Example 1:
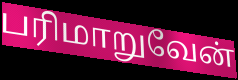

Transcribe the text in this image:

பரிமாறுவேன்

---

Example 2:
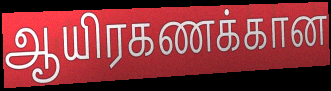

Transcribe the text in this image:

ஆயிரகணக்கான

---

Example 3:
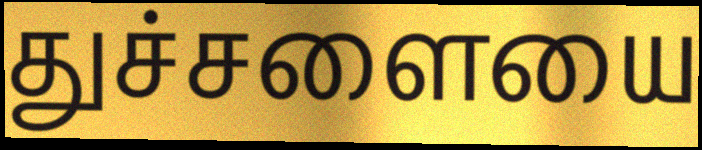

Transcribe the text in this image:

துச்சளையை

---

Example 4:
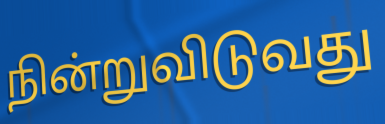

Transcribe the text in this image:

நின்றுவிடுவது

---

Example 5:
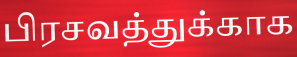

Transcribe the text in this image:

பிரசவத்துக்காக